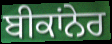
ਬੀਕਾਂਨੇਰ